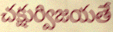
చక్షుర్విజయతే